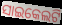
ସାଇକେଲଟି